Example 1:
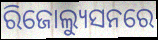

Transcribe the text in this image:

ରିଜୋଲ୍ୟୁସନରେ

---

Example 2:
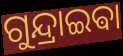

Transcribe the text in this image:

ଗୁନ୍ଦ୍ରାଇଵା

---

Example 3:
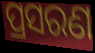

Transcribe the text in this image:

ପ୍ରସରଣ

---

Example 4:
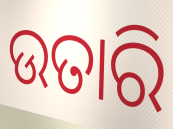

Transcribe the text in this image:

ଉତାରି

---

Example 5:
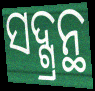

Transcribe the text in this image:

ସଦ୍ଗ୍ରନ୍ଥ